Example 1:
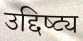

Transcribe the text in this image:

उद्दिष्ट्य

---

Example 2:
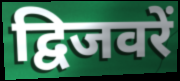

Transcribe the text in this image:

द्विजवरें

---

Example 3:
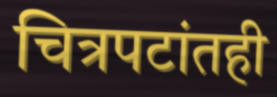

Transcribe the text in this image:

चित्रपटांतही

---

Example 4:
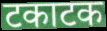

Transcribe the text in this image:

टकाटक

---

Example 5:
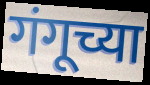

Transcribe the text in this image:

गंगूच्या